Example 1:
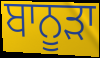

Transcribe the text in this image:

ਬਾਨੂੜਾ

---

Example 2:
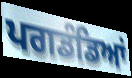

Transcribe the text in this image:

ਪਗਡੰਡਿਆਂ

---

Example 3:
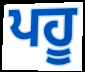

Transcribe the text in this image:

ਪਹੂ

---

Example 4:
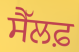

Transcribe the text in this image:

ਸੈੱਲਫ਼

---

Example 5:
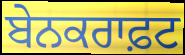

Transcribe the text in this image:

ਬੇਨਕਰਾਫ਼ਟ